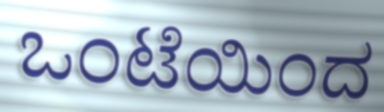
ಒಂಟೆಯಿಂದ